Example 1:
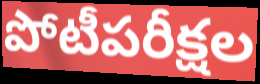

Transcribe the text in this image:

పోటీపరీక్షల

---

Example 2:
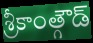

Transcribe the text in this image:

శ్రీకాంత్గౌడ్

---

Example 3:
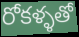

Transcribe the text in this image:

రోకళ్ళతో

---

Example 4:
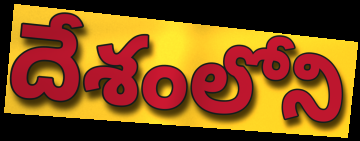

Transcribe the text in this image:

దేశంలోని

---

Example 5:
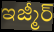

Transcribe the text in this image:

ఇజ్మీర్